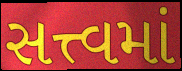
સત્ત્વમાં